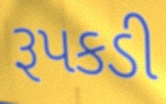
રૂપકડી